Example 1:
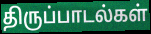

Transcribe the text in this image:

திருப்பாடல்கள்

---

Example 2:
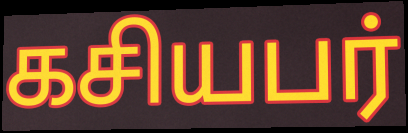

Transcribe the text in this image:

கசியபர்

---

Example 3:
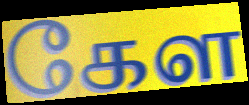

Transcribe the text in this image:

கேள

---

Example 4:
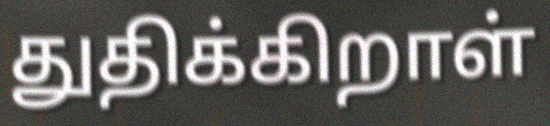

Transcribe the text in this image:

துதிக்கிறாள்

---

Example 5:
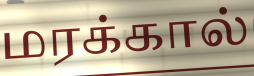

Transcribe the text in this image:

மரக்கால்